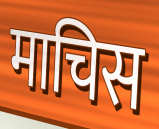
माचिस